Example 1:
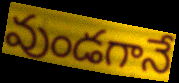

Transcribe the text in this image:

వుండగానే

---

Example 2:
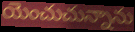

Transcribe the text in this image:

యెంచుచున్నాను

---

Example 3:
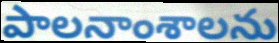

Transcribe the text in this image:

పాలనాంశాలను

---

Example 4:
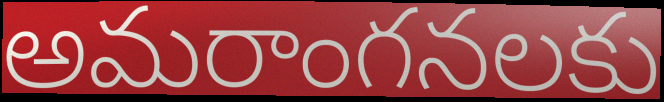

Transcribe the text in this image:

అమరాంగనలకు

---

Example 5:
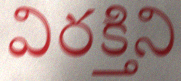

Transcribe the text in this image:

విరక్తిని